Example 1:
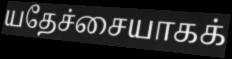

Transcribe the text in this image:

யதேச்சையாகக்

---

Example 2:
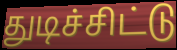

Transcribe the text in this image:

துடிச்சிட்டு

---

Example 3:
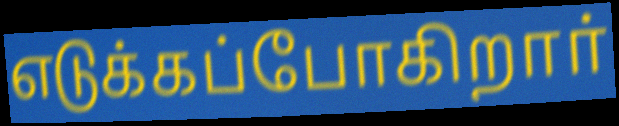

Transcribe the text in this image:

எடுக்கப்போகிறார்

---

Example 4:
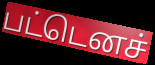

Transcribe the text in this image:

பட்டெனச்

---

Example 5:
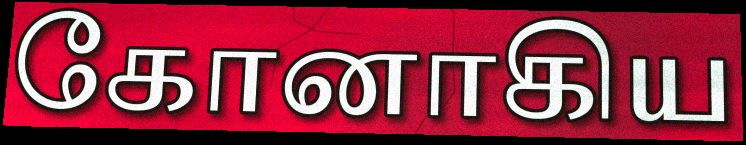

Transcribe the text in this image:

கோனாகிய